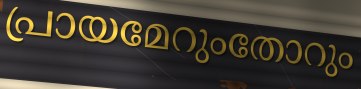
പ്രായമേറുംതോറും